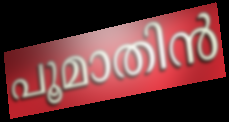
പൂമാതിൻ